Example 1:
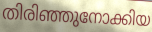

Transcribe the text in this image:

തിരിഞ്ഞുനോക്കിയ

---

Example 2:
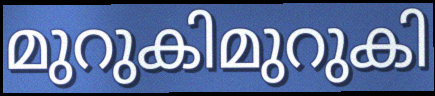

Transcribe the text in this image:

മുറുകിമുറുകി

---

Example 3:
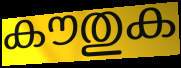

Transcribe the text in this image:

കൗതുക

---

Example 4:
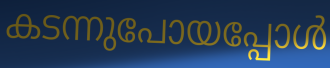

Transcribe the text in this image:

കടന്നുപോയപ്പോൾ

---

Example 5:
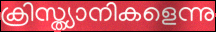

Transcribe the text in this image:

ക്രിസ്ത്യാനികളെന്നു